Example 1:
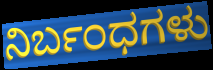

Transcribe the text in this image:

ನಿರ್ಬಂಧಗಳು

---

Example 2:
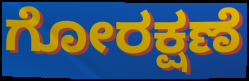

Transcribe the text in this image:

ಗೋರಕ್ಷಣೆ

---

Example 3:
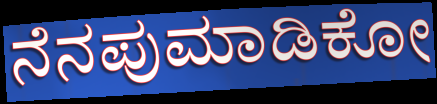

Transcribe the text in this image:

ನೆನಪುಮಾಡಿಕೋ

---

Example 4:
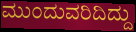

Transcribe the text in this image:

ಮುಂದುವರಿದಿದ್ದು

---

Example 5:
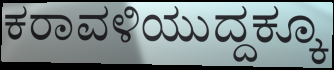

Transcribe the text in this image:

ಕರಾವಳಿಯುದ್ದಕ್ಕೂ